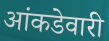
आंकडेवारी